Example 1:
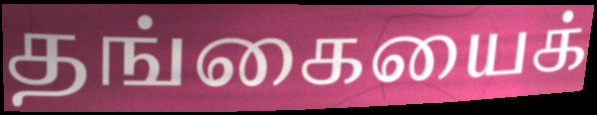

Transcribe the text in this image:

தங்கையைக்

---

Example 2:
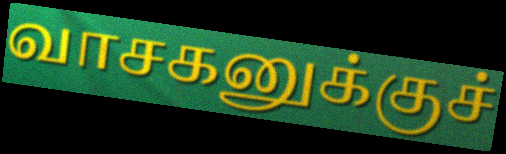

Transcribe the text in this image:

வாசகனுக்குச்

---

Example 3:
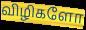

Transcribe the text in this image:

விழிகளோ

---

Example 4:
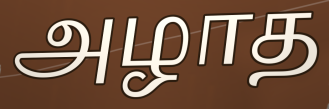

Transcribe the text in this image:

அழாத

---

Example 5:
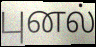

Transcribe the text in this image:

புனல்